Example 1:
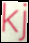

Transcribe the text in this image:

kj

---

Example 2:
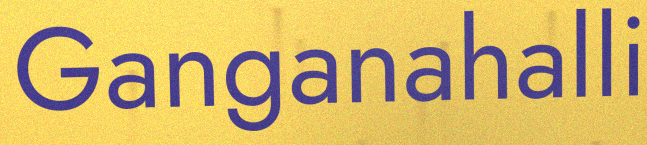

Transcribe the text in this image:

Ganganahalli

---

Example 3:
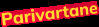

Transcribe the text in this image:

Parivartane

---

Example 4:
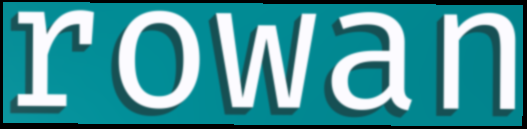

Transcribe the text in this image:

rowan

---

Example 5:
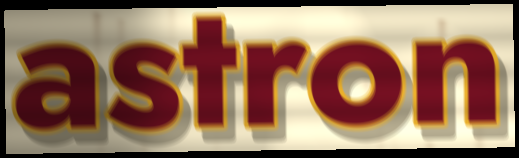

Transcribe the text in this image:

astron